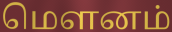
மெளனம்